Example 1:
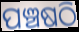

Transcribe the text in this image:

ପଞ୍ଚଷଠି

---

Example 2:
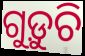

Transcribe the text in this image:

ଗୁଡ଼ୁଚି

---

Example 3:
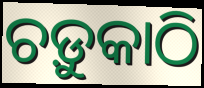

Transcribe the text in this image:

ଚଡ଼ୁକାଠି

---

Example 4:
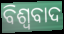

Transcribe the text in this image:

ବିଶ୍ୱବାଦ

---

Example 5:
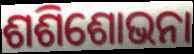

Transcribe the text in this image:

ଶଶିଶୋଭନା